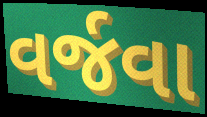
વર્જવા